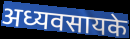
अध्यवसायके